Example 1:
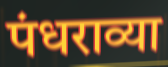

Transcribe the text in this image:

पंधराव्या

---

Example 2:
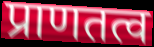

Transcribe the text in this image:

प्राणतत्व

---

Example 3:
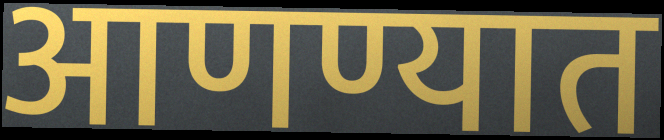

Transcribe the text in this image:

आणण्यात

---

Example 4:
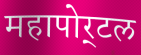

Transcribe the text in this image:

महापोर्टल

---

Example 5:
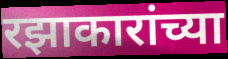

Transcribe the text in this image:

रझाकारांच्या